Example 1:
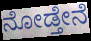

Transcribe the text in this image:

ನೋಡ್ತೇನೆ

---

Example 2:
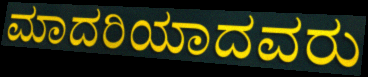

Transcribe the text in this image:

ಮಾದರಿಯಾದವರು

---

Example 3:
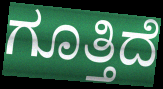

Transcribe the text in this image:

ಗೂತ್ತಿದೆ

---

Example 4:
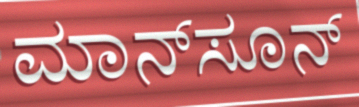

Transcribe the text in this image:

ಮಾನ್‌ಸೂನ್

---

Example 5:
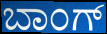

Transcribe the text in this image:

ಬಾಂಗ್